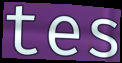
tes